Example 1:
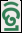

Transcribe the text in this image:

ତ୍ରି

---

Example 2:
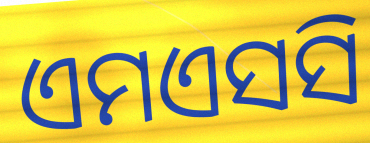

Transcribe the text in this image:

ଏମଏସସି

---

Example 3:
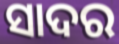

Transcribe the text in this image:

ସାଦର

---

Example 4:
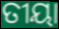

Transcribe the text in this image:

ତୀୟା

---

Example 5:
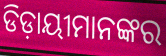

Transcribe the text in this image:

ଡିଡ଼ାୟୀମାନଙ୍କର